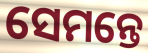
ସେମନ୍ତେ